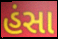
હંસા